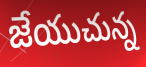
జేయుచున్న